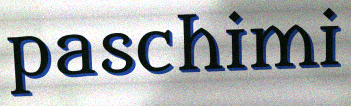
paschimi